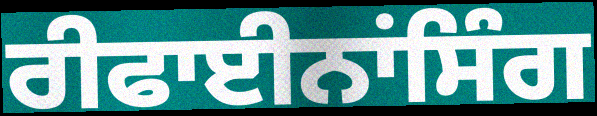
ਰੀਫਾਈਨਾਂਸਿੰਗ